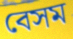
বেসম